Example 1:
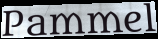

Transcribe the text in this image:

Pammel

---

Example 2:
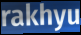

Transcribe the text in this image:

rakhyu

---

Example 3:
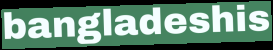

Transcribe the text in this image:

bangladeshis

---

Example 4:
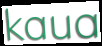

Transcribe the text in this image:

kaua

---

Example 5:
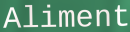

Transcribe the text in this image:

Aliment